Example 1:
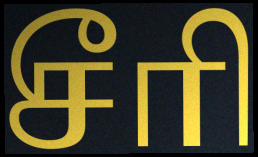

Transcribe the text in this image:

சீரி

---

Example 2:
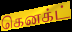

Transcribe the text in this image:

கெனக்ட்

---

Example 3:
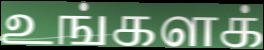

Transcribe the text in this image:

உங்களக்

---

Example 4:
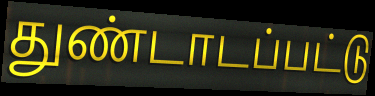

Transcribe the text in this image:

துண்டாடப்பட்டு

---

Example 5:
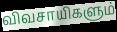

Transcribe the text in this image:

விவசாயிகளும்